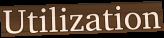
Utilization